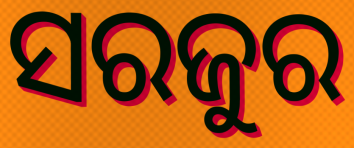
ସରଜୁର